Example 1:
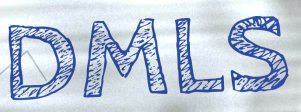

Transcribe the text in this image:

DMLS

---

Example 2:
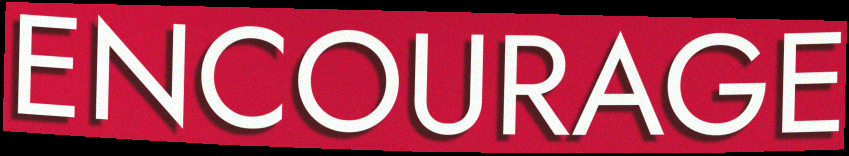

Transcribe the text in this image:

ENCOURAGE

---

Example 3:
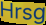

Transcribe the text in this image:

Hrsg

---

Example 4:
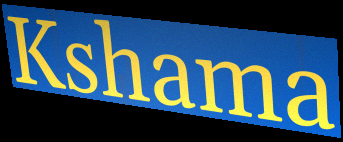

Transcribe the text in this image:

Kshama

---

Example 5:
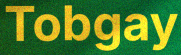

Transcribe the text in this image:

Tobgay